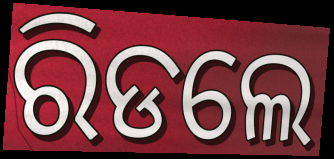
ରିଡଲେ